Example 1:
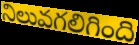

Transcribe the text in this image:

నిలువగలిగింది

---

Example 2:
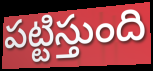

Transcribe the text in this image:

పట్టిస్తుంది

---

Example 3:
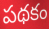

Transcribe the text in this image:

పథకం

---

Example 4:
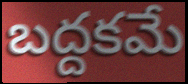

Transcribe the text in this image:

బద్దకమే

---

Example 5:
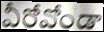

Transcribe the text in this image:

వీరోవోండా